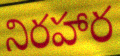
నిరహార